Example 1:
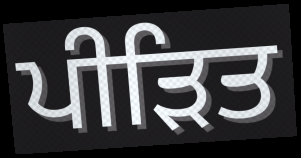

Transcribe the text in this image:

ਪੀੜਿਤ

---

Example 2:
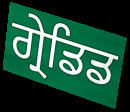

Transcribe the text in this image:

ਗ੍ਰੇਡਿਡ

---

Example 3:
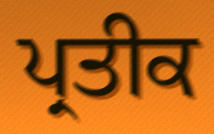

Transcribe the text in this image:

ਪ੍ਰਤੀਕ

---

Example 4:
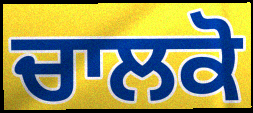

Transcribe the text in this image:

ਚਾਲਕੋ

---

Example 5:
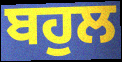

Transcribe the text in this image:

ਬਹੁਲ